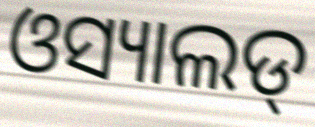
ଓସ୍ୟାଲଡ୍